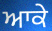
ਆਕੇ